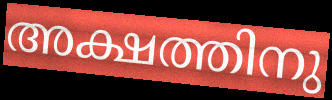
അക്ഷത്തിനു